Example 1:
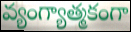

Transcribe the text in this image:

వ్యంగ్యాత్మకంగా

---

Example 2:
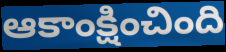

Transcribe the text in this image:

ఆకాంక్షించింది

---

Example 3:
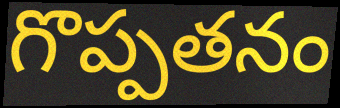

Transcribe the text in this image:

గొప్పతనం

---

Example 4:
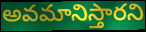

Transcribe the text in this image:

అవమానిస్తారని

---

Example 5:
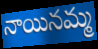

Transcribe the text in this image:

నాయినమ్మ